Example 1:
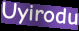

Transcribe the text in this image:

Uyirodu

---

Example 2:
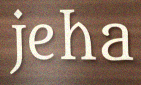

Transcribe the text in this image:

jeha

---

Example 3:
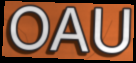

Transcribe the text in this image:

OAU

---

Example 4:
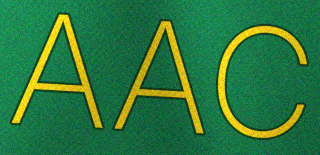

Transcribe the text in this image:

AAC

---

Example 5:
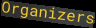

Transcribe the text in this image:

Organizers